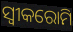
ସ୍ଵୀକରୋମି